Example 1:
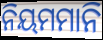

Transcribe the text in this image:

ନିୟମମାନି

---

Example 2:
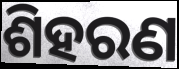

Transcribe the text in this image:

ଶିହରଣ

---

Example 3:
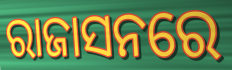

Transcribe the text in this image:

ରାଜାସନରେ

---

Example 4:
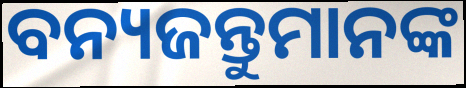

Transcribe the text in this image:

ବନ୍ୟଜନ୍ତୁମାନଙ୍କ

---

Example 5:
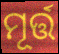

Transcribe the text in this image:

ମୂର୍ତ୍ତ